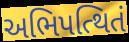
અભિપત્થિતં